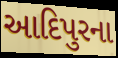
આદિપુરના